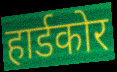
हार्डकोर